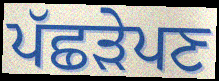
ਪੱਛੜੇਪਣ